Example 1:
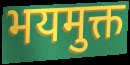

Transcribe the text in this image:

भयमुक्त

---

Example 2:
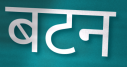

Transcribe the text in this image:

बटन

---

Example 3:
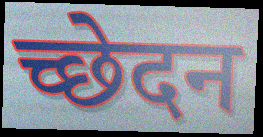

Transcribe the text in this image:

च्छेदन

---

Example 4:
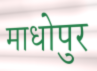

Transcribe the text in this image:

माधोपुर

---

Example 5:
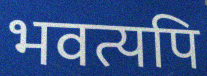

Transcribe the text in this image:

भवत्यपि